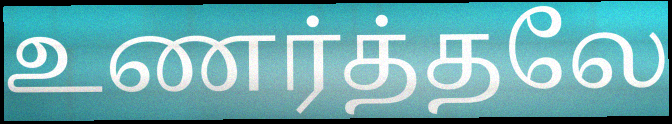
உணர்த்தலே